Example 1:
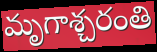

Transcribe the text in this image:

మృగాశ్చరంతి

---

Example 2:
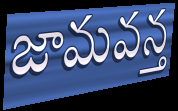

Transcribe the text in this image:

జామవన్త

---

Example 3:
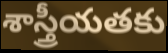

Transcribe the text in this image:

శాస్త్రీయతకు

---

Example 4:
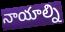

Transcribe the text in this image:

నాయాల్ని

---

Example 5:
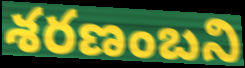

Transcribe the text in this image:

శరణంబని